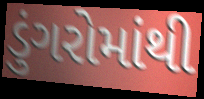
ડુંગરોમાંથી